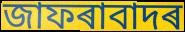
জাফৰাবাদৰ